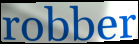
robber